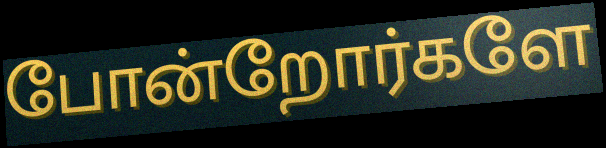
போன்றோர்களே